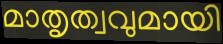
മാതൃത്വവുമായി